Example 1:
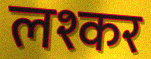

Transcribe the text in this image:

लश्कर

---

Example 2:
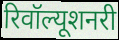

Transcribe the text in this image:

रिवॉल्यूशनरी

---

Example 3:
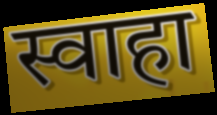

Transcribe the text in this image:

स्वाहा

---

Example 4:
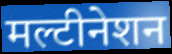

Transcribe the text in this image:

मल्टीनेशन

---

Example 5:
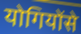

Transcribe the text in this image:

योगियोंसे